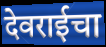
देवराईचा